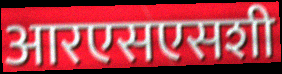
आरएसएसशी